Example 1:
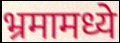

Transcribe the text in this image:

भ्रमामध्ये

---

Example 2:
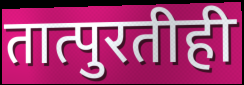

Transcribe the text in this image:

तात्पुरतीही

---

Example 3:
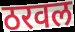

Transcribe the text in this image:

ठरवल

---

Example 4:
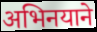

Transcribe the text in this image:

अभिनयाने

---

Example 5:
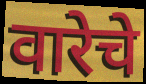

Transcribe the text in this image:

वारेचे